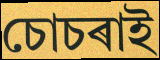
চোচৰাই